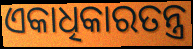
ଏକାଧିକାରତନ୍ତ୍ର